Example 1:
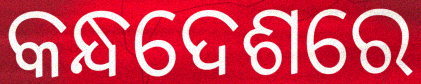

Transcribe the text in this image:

କନ୍ଧଦେଶରେ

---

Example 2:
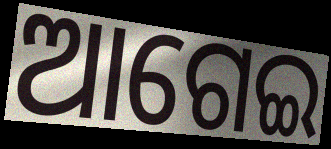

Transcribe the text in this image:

ଆଗେଇ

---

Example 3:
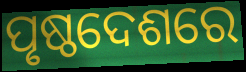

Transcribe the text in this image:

ପୃଷ୍ଠଦେଶରେ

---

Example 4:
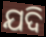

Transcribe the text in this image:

ଯଦି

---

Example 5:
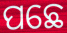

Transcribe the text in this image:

ପଛେ